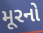
મૂરનો